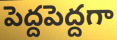
పెద్దపెద్దగా